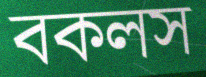
বকলস